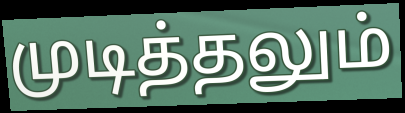
முடித்தலும்